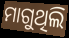
ମାଗୁଥିଲି